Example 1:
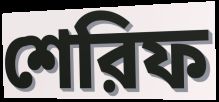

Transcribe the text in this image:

শেরিফ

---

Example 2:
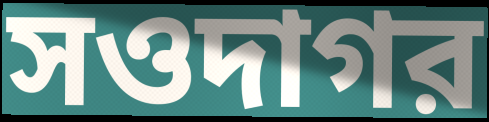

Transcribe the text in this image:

সওদাগর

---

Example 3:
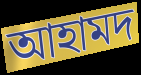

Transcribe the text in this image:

আহামদ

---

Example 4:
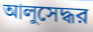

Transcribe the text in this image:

আলুসেদ্ধর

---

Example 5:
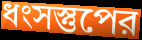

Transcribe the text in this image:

ধংসস্তুপের